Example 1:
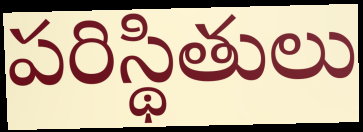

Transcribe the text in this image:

పరిస్థితులు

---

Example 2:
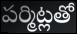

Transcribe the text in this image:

పర్మిట్లతో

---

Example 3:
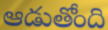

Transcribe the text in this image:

ఆడుతోంది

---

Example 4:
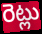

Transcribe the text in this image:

రెట్లు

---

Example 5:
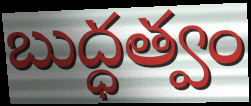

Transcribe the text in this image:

బుద్ధత్వం